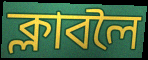
ক্লাবলৈ